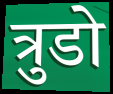
त्रुडो